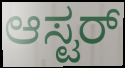
ಆಸ್ಟರ್